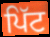
ਪਿੱਟ